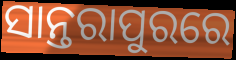
ସାନ୍ତରାପୁରରେ